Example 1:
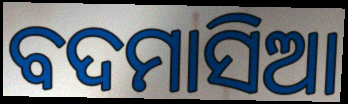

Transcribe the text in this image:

ବଦମାସିଆ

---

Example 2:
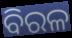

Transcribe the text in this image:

ବିରଳ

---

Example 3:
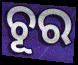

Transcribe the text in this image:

ଚୂର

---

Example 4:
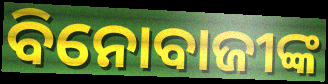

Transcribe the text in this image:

ବିନୋବାଜୀଙ୍କ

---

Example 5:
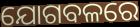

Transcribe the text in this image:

ଯୋଗବଳରେ